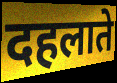
दहलाते